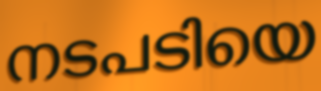
നടപടിയെ